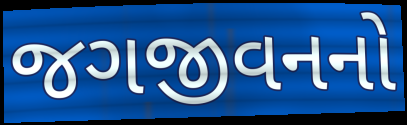
જગજીવનનો